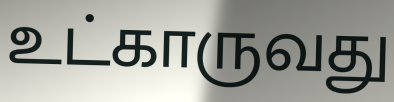
உட்காருவது